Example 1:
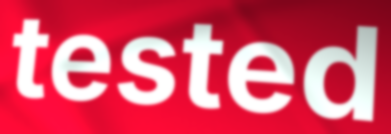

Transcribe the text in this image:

tested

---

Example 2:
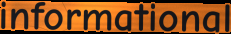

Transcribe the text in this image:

informational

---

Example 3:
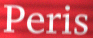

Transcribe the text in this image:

Peris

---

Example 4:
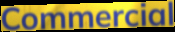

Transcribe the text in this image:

Commercial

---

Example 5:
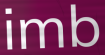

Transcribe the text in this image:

imb